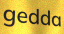
gedda